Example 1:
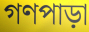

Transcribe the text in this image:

গণপাড়া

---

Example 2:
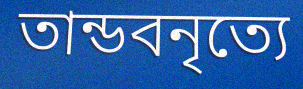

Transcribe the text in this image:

তান্ডবনৃত্যে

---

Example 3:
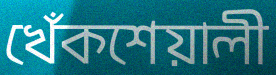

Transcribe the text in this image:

খেঁকশেয়ালী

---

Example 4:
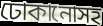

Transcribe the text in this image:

ঢোকানোসহ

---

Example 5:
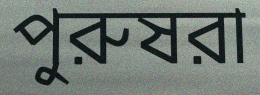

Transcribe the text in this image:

পুরুষরা